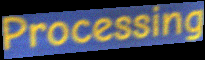
Processing